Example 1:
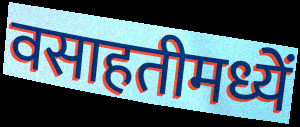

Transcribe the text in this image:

वसाहतीमध्यें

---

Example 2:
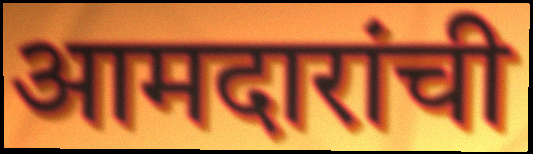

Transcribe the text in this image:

आमदारांची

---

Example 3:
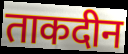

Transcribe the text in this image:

ताकदीन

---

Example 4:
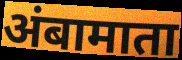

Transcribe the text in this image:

अंबामाता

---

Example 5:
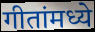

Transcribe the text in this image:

गीतांमध्ये